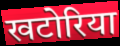
खटोरिया